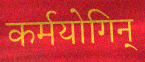
कर्मयोगिन्